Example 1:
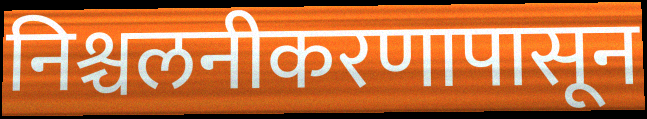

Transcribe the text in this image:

निश्चलनीकरणापासून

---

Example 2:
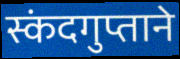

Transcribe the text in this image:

स्कंदगुप्ताने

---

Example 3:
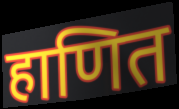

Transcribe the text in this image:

हाणित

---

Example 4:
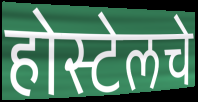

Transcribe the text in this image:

होस्टेलचे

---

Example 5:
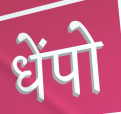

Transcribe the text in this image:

धेंपो